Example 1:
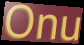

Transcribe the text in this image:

Onu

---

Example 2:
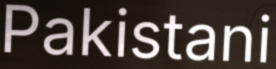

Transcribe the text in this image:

Pakistani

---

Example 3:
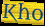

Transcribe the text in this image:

Kho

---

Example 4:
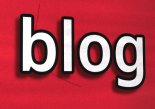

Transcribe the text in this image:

blog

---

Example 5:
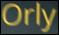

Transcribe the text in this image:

Orly